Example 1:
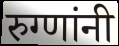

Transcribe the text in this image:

रुग्णांनी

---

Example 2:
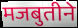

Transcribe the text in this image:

मजबुतीने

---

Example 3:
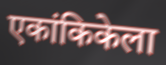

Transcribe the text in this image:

एकांकिकेला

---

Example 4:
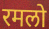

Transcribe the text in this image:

रमलो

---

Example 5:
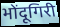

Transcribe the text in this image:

भोंदूगिरी